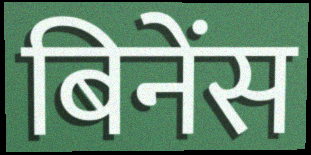
बिनेंस